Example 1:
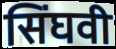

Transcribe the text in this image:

सिंघवी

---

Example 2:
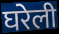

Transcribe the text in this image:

घरेली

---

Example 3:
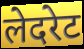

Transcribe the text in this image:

लेदरेट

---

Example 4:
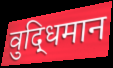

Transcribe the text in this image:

वुद्धिमान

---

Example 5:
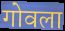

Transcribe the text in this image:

गोवला